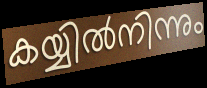
കയ്യിൽനിന്നും